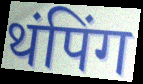
थंपिंग